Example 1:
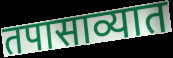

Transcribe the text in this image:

तपासाव्यात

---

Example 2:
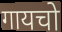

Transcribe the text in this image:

गायचो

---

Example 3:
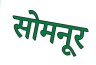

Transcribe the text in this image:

सोमनूर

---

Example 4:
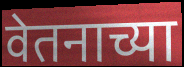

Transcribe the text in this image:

वेतनाच्या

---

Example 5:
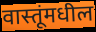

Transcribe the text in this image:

वास्तूंमधील